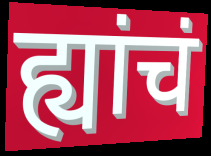
ह्यांचं